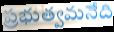
ప్రభుత్వమనేది